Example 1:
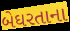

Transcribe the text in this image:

બેઘરતાના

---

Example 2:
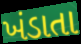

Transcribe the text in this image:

ખંડાતા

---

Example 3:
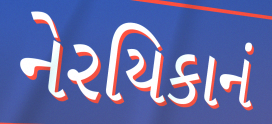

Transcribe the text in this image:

નેરયિકાનં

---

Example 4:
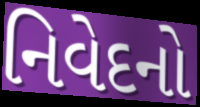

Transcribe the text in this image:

નિવેદનો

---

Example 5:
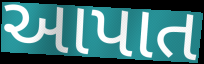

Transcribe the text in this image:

આપાત